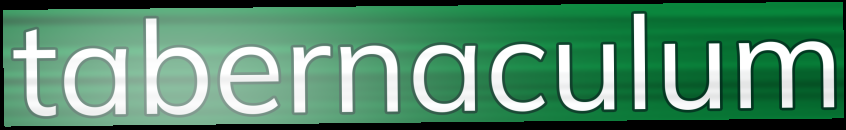
tabernaculum